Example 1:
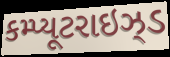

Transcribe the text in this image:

કમ્પ્યૂટરાઇઝ્ડ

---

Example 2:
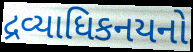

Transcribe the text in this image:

દ્રવ્યાધિકનયનો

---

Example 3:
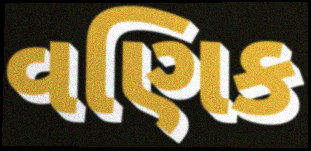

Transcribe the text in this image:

વણિક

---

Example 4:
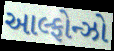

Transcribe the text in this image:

આલ્ફોન્ઝો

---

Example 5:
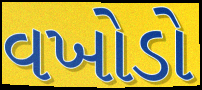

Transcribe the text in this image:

વખોડો